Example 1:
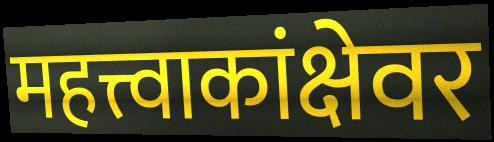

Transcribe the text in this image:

महत्त्वाकांक्षेवर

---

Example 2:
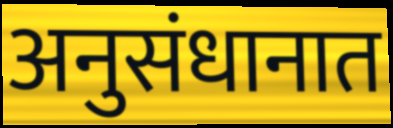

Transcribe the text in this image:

अनुसंधानात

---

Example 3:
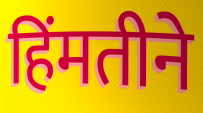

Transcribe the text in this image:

हिंमतीने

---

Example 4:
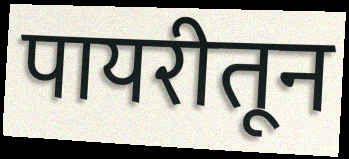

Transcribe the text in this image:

पायरीतून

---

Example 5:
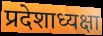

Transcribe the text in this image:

प्रदेशाध्यक्षा